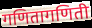
गणितागणिती